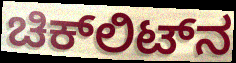
ಚಿಕ್‌ಲಿಟ್‌ನ